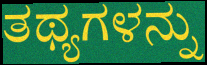
ತಥ್ಯಗಳನ್ನು